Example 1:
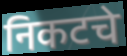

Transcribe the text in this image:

निकटचे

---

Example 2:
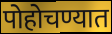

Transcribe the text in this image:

पोहोचण्यात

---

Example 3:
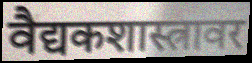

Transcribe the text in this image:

वैद्यकशास्त्रावर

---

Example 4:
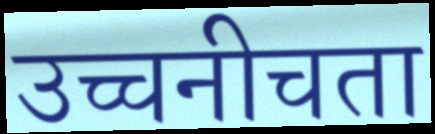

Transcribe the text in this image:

उच्चनीचता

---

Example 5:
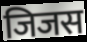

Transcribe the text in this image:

जिजस